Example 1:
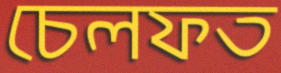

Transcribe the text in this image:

চেলফত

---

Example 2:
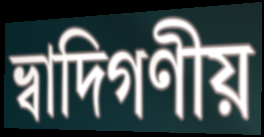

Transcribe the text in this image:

ভ্বাদিগণীয়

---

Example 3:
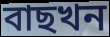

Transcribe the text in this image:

বাছখন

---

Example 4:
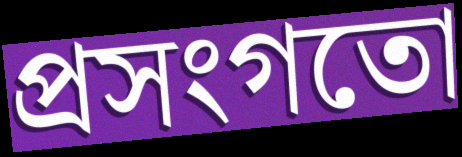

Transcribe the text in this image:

প্ৰসংগতো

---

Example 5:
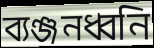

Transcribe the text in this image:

ব্যঞ্জনধ্বনি